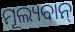
ମୂଲ୍ୟବାନ୍